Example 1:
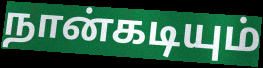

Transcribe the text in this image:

நான்கடியும்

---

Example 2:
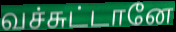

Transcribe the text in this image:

வச்சுட்டானே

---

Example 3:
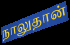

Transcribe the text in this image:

நாலுதான்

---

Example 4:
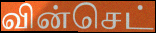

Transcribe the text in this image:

வின்செட்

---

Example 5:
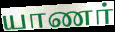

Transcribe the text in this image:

யாணர்